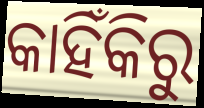
କାହିଁକିରୁ